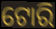
ଟୋରି